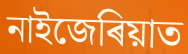
নাইজেৰিয়াত